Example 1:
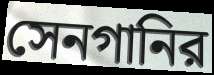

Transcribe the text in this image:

সেনগানির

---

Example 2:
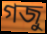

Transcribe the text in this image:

গজু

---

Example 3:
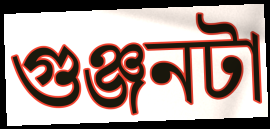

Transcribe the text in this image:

গুঞ্জনটা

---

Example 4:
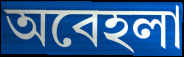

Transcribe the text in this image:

অবেহলা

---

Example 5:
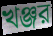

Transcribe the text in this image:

খঞ্জর